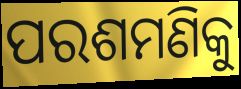
ପରଶମଣିକୁ